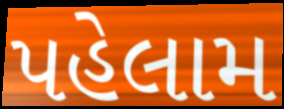
પહેલામ